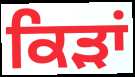
ਕਿੜਾਂ